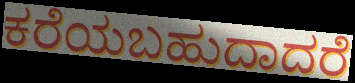
ಕರೆಯಬಹುದಾದರೆ